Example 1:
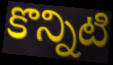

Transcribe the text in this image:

కొన్నిటి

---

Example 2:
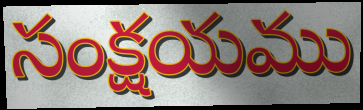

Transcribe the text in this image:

సంక్షయము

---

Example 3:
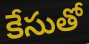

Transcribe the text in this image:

కేసుతో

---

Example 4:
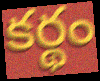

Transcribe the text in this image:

కర్థం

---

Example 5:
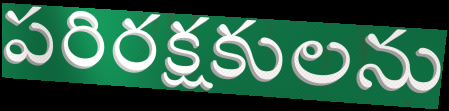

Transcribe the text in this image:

పరిరక్షకులను